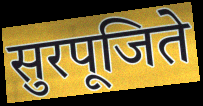
सुरपूजिते